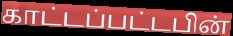
காட்டப்பட்டபின்